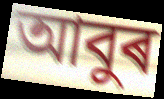
আবুৰ